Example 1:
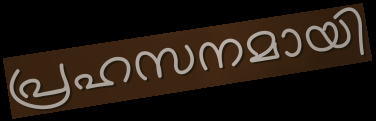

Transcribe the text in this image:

പ്രഹസനമായി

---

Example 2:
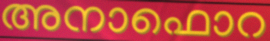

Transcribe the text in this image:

അനാഫൊറ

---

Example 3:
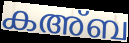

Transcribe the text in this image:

കഅ്ബ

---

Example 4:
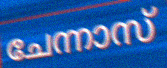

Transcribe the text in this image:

ചേന്നാസ്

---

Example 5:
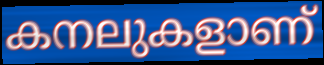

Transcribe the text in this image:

കനലുകളാണ്